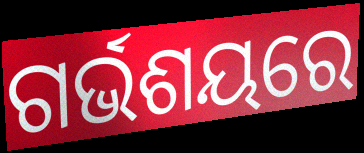
ଗର୍ଭଶୟରେ